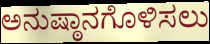
ಅನುಷ್ಠಾನಗೊಳಿಸಲು